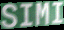
SIMI